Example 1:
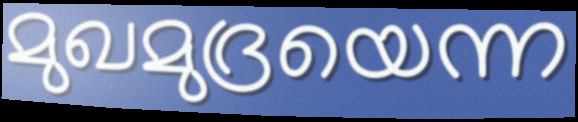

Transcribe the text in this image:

മുഖമുദ്രയെന്ന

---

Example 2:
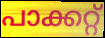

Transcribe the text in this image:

പാക്കറ്റ്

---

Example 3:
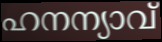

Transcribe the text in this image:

ഹനന്യാവ്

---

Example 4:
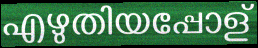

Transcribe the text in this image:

എഴുതിയപ്പോള്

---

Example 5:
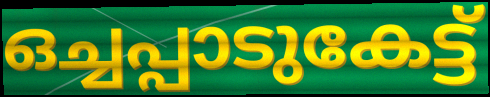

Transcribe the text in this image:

ഒച്ചപ്പാടുകേട്ട്